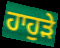
ਹਾਹੁੜੇ